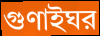
গুণাইঘর